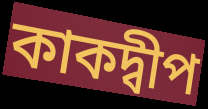
কাকদ্বীপ